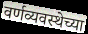
वर्णव्यवस्थेच्या